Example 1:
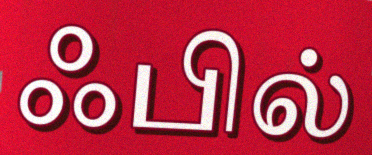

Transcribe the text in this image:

ஃபில்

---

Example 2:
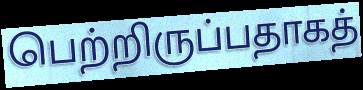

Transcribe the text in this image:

பெற்றிருப்பதாகத்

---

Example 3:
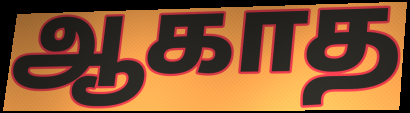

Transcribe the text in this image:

ஆகாத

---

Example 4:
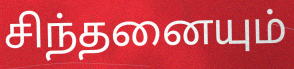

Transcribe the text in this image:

சிந்தனையும்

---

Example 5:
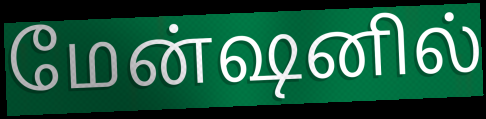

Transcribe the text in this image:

மேன்ஷனில்